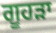
ਗੂਹੜਾ